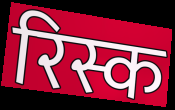
रिस्क